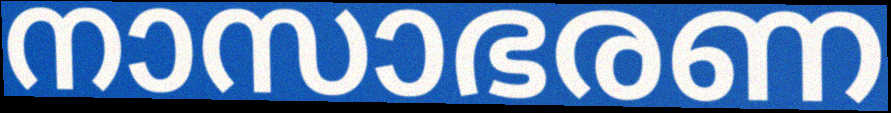
നാസാഭരണ